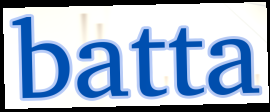
batta